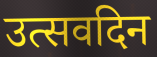
उत्सवदिन